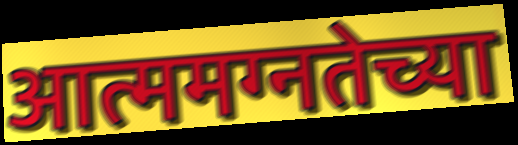
आत्ममग्नतेच्या